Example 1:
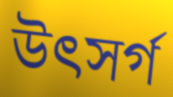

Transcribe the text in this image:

উৎসর্গ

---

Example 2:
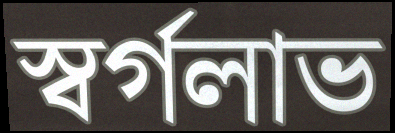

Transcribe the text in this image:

স্বর্গলাভ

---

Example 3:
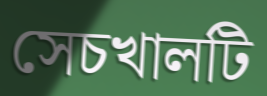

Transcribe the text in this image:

সেচখালটি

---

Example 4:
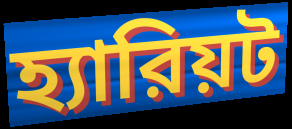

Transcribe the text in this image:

হ্যারিয়ট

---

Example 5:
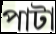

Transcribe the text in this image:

পাটা